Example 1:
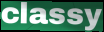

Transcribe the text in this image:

classy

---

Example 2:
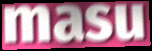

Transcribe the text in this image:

masu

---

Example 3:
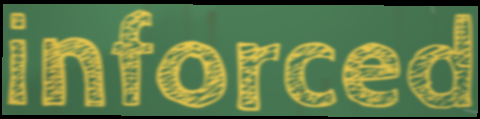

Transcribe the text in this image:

inforced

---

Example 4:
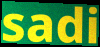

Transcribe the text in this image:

sadi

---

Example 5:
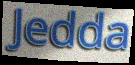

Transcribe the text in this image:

Jedda